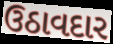
ઉઠાવદાર